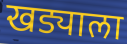
खड्याला